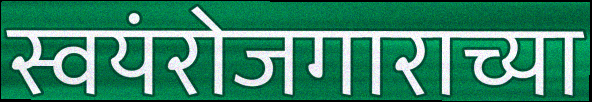
स्वयंरोजगाराच्या